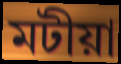
মটীয়া